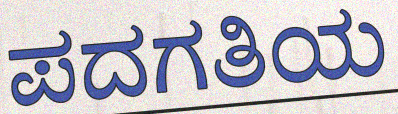
ಪದಗತಿಯ